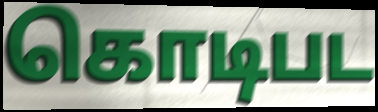
கொடிபட